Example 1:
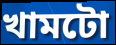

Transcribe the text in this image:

খামটো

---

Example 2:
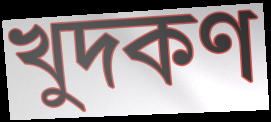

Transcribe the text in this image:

খুদকণ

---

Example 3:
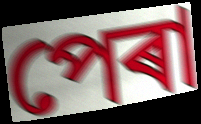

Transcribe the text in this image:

পেৰা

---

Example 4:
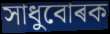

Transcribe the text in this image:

সাধুবোৰক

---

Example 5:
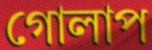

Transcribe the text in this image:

গোলাপ